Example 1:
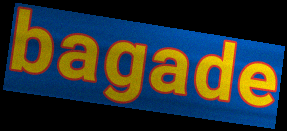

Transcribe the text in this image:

bagade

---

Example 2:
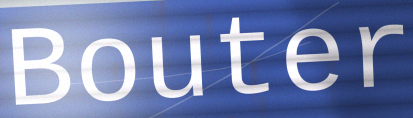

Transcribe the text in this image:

Bouter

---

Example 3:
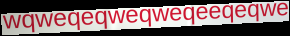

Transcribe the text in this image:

wqweqeqweqweqeeqeqwe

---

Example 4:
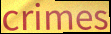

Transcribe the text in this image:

crimes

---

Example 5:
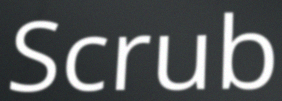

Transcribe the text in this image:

Scrub